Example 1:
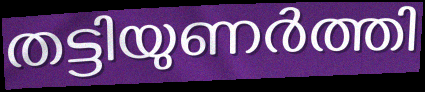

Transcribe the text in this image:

തട്ടിയുണർത്തി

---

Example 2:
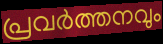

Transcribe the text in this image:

പ്രവർത്തനവും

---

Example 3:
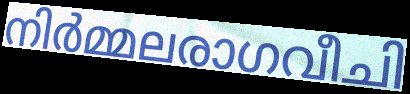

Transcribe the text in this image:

നിർമ്മലരാഗവീചി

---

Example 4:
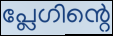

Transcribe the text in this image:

പ്ലേഗിന്റെ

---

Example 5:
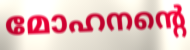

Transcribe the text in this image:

മോഹനന്റെ